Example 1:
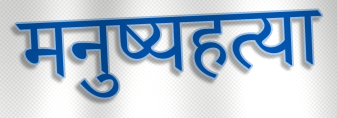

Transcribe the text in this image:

मनुष्यहत्या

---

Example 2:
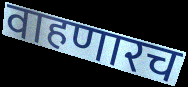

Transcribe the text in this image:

वाहणारच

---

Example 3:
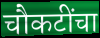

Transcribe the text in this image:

चौकटींचा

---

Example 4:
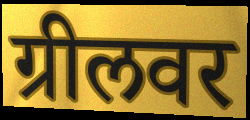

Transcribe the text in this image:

ग्रीलवर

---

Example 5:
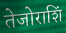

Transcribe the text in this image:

तेजोराशिं